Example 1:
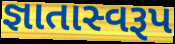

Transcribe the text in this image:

જ્ઞાતાસ્વરૂપ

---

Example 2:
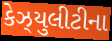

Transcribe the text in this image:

કેઝ્યુલીટીના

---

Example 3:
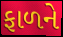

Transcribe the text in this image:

ફાળને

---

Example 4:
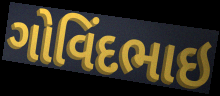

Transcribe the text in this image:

ગોવિંદભાઇ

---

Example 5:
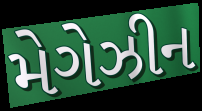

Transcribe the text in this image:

મેગેઝીન